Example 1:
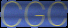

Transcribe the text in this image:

CGC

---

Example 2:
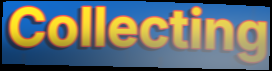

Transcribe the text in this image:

Collecting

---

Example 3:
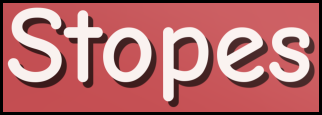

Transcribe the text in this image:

Stopes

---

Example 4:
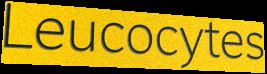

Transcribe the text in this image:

Leucocytes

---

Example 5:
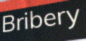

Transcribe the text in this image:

Bribery